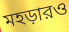
মহড়ারও